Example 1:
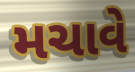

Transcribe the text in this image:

મચાવે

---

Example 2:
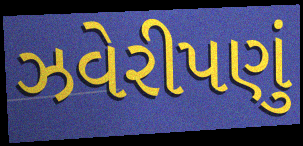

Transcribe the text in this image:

ઝવેરીપણું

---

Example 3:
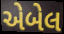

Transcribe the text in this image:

એબેલ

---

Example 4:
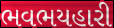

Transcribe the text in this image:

ભવભયહારી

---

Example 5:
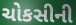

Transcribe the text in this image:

ચોકસીની